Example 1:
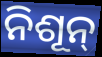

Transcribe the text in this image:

ନିଶୂନ୍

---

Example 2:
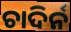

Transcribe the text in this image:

ଚାଦିର୍ନ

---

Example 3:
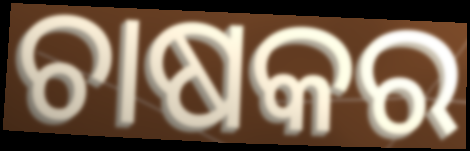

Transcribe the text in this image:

ଚାଷକର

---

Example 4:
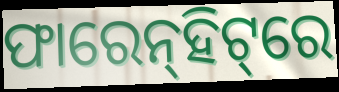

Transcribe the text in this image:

ଫାରେନ୍‌ହିଟ୍‌ରେ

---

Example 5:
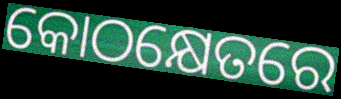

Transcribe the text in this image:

କୋଠକ୍ଷେତରେ